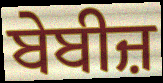
ਬੇਬੀਜ਼